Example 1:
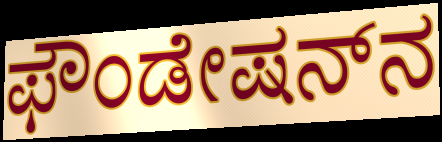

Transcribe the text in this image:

ಫೌಂಡೇಷನ್‌ನ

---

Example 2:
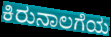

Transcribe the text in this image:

ಕಿರುನಾಲಗೆಯ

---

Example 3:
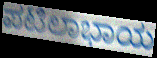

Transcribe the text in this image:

ಪಟಿಲಾಭಾಯ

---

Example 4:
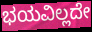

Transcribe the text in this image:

ಭಯವಿಲ್ಲದೇ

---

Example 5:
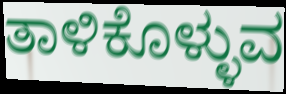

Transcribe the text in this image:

ತಾಳಿಕೊಳ್ಳುವ